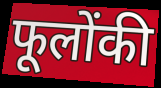
फूलोंकी